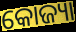
କୋଜ୍ୟା